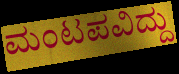
ಮಂಟಪವಿದ್ದು